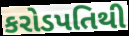
કરોડપતિથી